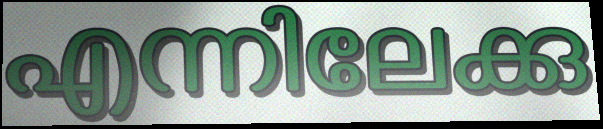
എന്നിലേക്കു